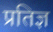
प्रतिज्ञ